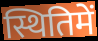
स्थितिमें